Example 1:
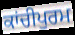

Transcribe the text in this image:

ਕਾਂਚੀਪੁਰਮ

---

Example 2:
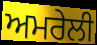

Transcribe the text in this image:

ਅਮਰੇਲੀ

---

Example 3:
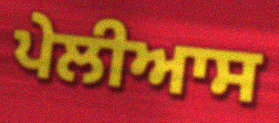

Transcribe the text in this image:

ਪੇਲੀਆਸ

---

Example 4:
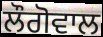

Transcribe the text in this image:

ਲੌਗੋਵਾਲ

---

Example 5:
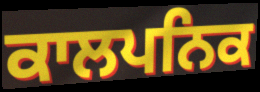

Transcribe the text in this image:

ਕਾਲਪਨਿਕ